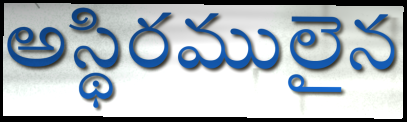
అస్థిరములైన